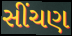
સીંચણ